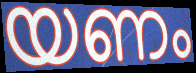
യണം